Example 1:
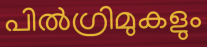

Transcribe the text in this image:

പിൽഗ്രിമുകളും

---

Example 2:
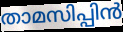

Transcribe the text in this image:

താമസിപ്പിൻ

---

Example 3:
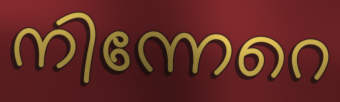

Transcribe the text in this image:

നിന്നേറെ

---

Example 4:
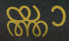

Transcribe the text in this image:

യ്ത്താ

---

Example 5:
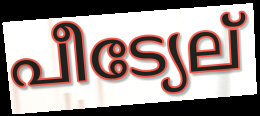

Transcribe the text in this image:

പീട്യേല്